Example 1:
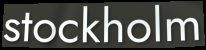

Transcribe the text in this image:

stockholm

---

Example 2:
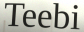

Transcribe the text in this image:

Teebi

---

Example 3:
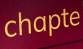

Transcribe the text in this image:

chapte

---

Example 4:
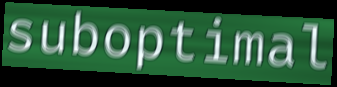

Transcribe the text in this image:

suboptimal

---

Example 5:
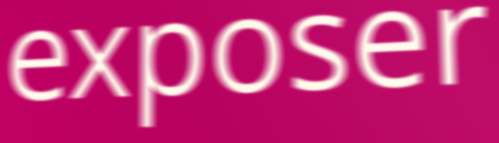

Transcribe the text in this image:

exposer